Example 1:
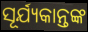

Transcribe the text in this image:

ସୂର୍ଯ୍ୟକାନ୍ତଙ୍କ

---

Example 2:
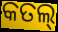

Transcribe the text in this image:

କତଲ୍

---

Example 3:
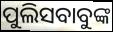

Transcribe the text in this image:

ପୁଲିସବାବୁଙ୍କ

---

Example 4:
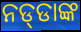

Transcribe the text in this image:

ନଡ୍‌ଡାଙ୍କ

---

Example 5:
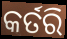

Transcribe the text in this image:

କର୍ତରି